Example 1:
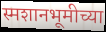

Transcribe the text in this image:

स्मशानभूमीच्या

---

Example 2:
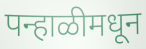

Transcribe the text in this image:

पन्हाळीमधून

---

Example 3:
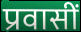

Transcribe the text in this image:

प्रवासीं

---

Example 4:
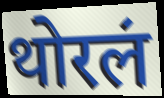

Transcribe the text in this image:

थोरलं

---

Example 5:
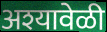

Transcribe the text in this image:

अश्यावेळी